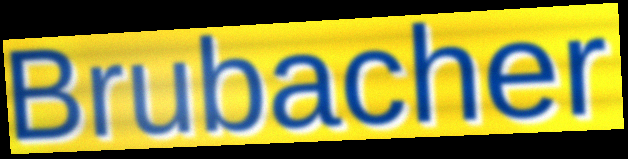
Brubacher